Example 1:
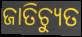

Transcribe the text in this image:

ଜାତିଚ୍ୟୁତ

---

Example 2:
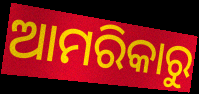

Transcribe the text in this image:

ଆମରିକାରୁ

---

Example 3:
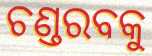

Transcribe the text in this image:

ଚଣ୍ଡରବକୁ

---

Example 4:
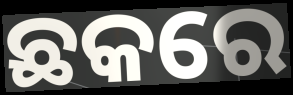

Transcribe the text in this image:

ଛକରେ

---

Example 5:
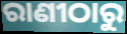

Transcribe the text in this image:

ରାଣୀଠାରୁ